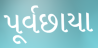
પૂર્વછાયા